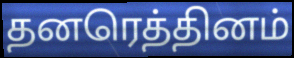
தனரெத்தினம்